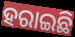
ହରାଇଛି